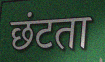
छंटता